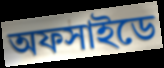
অফসাইডে